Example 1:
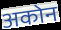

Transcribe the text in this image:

अकोन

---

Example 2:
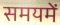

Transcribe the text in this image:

समयमें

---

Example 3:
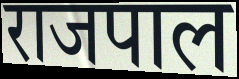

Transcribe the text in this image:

राजपाल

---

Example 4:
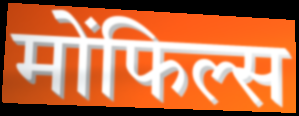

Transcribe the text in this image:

मोंफिल्स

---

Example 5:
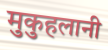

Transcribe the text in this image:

मुकुहलानी